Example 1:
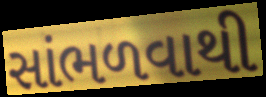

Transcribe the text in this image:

સાંભળવાથી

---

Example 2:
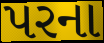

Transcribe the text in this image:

પરના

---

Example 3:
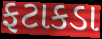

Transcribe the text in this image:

ફટાકડા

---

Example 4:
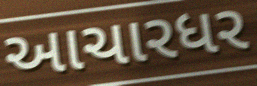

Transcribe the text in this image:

આચારધર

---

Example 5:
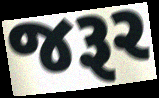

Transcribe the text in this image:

જરૂર